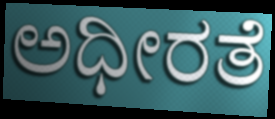
ಅಧೀರತೆ